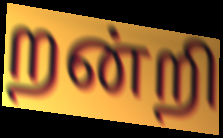
றன்றி